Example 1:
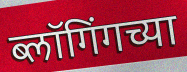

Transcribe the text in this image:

ब्लॉगिंगच्या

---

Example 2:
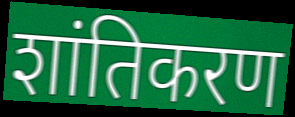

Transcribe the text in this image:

शांतिकरण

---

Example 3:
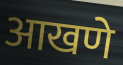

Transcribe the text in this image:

आखणे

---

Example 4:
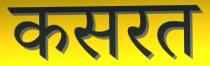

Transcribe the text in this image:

कसरत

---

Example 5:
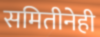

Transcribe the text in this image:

समितीनेही